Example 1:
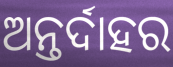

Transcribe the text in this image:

ଅନ୍ତର୍ଦାହର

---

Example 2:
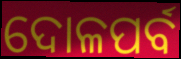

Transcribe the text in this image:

ଦୋଳପର୍ବ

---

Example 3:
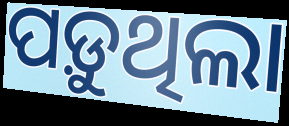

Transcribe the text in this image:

ପଡ଼ୁଥିଲା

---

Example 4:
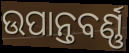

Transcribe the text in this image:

ଉପାନ୍ତବର୍ଣ୍ଣ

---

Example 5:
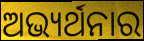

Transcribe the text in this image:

ଅଭ୍ୟର୍ଥନାର